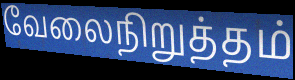
வேலைநிறுத்தம்